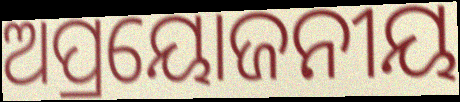
ଅପ୍ରୟୋଜନୀୟ